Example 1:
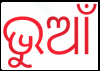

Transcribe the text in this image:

ଭୁଆଁ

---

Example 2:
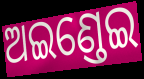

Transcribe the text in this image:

ଅଇଣ୍ଡେଇ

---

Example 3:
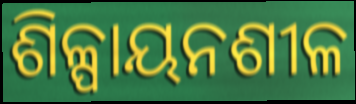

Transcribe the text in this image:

ଶିଳ୍ପାୟନଶୀଳ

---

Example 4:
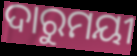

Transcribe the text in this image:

ଦାରୁମୟୀ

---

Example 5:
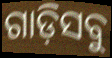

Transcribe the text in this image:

ଗାଡ଼ିସବୁ